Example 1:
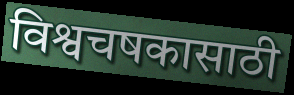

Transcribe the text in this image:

विश्वचषकासाठी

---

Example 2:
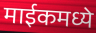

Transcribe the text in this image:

माईकमध्ये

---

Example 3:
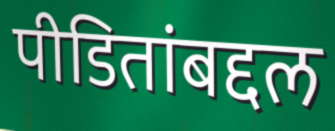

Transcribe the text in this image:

पीडितांबद्दल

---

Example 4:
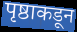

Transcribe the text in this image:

पृष्ठाकडून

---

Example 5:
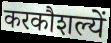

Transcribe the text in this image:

करकौशल्यें